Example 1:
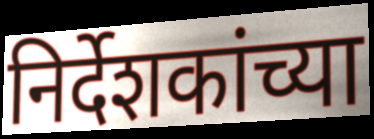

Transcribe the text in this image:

निर्देशकांच्या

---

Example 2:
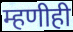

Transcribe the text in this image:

म्हणीही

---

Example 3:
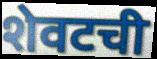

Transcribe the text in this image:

शेवटची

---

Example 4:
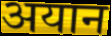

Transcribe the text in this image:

अयान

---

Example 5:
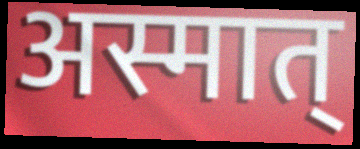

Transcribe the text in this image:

अस्मात्